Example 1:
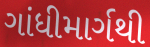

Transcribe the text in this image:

ગાંધીમાર્ગથી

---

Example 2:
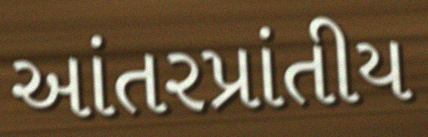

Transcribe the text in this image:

આંતરપ્રાંતીય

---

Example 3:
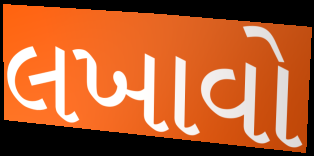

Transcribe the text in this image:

લખાવો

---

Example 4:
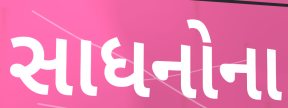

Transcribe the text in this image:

સાધનોના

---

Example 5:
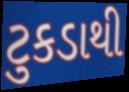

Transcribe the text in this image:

ટુકડાથી